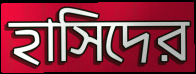
হাসিদের